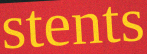
stents